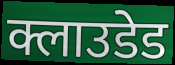
क्लाउडेड